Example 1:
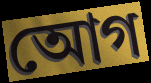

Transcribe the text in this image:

আেগ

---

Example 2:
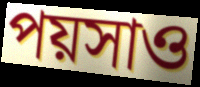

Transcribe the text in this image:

পয়সাও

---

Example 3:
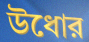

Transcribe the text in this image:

উধোর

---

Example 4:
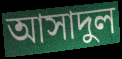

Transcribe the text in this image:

আসাদুল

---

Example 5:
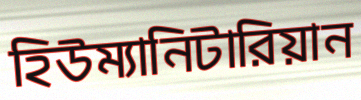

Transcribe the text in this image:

হিউম্যানিটারিয়ান